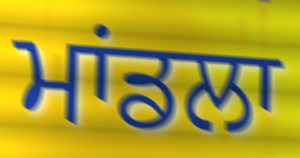
ਮਾਂਡਲਾ